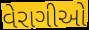
વેરાગીઓ